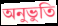
অনুভুতি